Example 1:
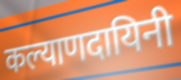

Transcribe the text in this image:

कल्याणदायिनी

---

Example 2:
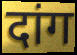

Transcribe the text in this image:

दांग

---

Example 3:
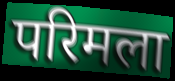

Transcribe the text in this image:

परिमला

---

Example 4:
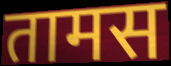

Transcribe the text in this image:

तामस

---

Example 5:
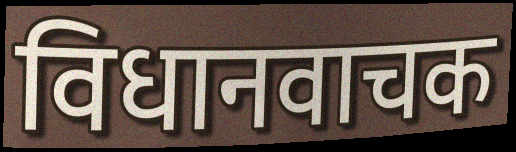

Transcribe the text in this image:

विधानवाचक